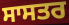
ਸਾਸਤਰ